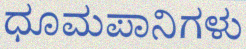
ಧೂಮಪಾನಿಗಳು